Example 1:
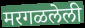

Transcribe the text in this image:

मरगळलेली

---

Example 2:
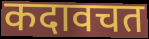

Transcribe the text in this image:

कदावचत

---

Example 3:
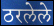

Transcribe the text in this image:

ठरलेले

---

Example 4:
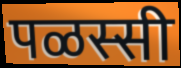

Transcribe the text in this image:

पळस्सी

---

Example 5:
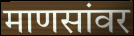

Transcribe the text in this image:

माणसांवर